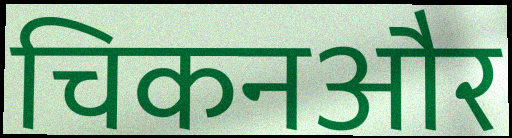
चिकनऔर